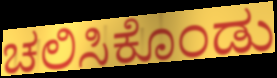
ಚಲಿಸಿಕೊಂಡು